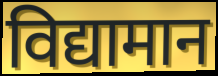
विद्यामान